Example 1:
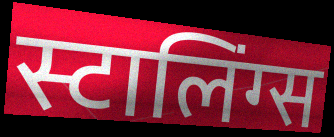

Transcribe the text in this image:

स्टालिंग्स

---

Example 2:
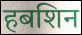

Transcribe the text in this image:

हबशिन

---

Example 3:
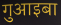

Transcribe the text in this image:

गुआइबा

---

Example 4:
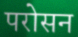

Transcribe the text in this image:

परोसन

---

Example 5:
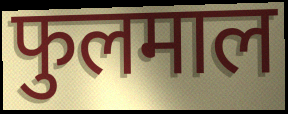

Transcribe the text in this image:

फुलमाल